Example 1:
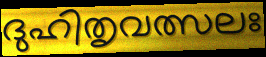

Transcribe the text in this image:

ദുഹിതൃവത്സലഃ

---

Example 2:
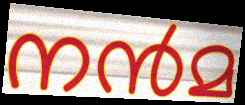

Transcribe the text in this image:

നൻമ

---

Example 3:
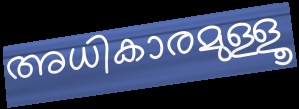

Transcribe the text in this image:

അധികാരമുള്ളൂ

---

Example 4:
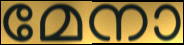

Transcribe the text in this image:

മേനാ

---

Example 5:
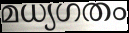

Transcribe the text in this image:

മധ്യഗതം